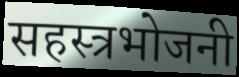
सहस्त्रभोजनी